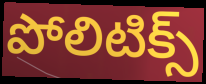
పోలిటిక్స్